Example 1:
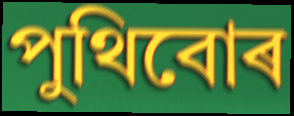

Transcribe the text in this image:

পুথিবোৰ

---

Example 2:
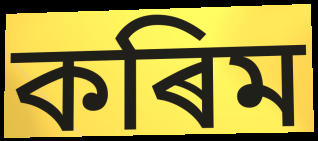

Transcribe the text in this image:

কৰিম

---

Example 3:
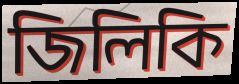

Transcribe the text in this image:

জিলিকি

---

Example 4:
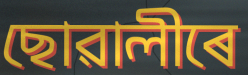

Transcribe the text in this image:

ছোৱালীৰে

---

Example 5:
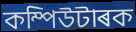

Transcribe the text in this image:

কম্পিউটাৰক